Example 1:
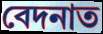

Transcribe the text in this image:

বেদনাত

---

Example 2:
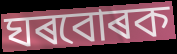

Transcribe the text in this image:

ঘৰবোৰক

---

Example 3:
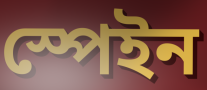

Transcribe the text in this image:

স্পেইন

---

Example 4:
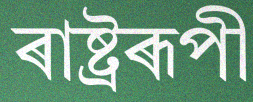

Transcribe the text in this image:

ৰাষ্ট্ৰৰূপী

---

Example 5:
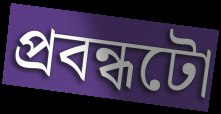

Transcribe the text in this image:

প্ৰবন্ধটো